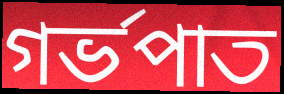
গর্ভপাত